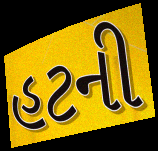
હટની